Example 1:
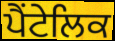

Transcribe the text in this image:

ਪੈਂਟੇਲਿਕ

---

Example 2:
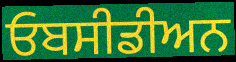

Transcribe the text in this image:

ਓਬਸੀਡੀਅਨ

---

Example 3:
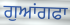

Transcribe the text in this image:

ਗੁਆਂਗਫਾ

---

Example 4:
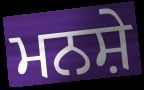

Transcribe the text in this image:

ਮਨਸ਼ੇ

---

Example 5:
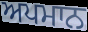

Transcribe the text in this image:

ਅਪਮਾਨ